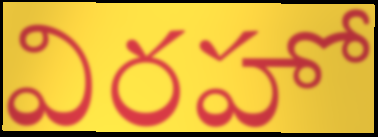
విరహో